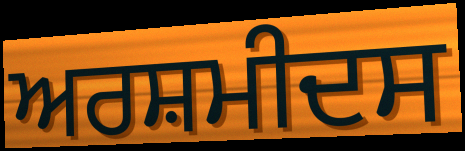
ਅਰਸ਼ਮੀਦਸ